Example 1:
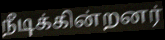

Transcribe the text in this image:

நீடிக்கின்றனர்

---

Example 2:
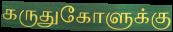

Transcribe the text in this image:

கருதுகோளுக்கு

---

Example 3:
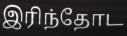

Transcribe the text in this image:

இரிந்தோட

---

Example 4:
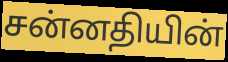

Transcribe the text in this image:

சன்னதியின்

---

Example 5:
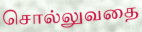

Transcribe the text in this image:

சொல்லுவதை